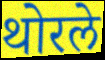
थोरले